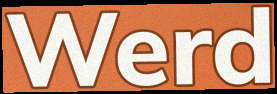
Werd